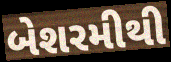
બેશરમીથી